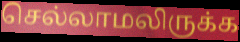
செல்லாமலிருக்க